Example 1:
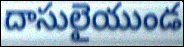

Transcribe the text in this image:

దాసులైయుండ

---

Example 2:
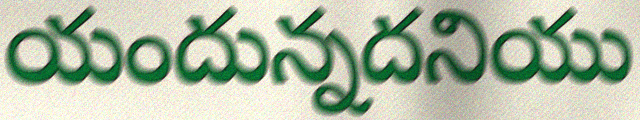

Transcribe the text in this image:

యందున్నదనియు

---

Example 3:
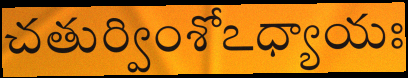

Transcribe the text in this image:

చతుర్వింశోఽధ్యాయః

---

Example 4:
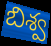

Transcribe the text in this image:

బిశ్వ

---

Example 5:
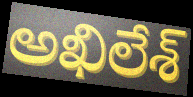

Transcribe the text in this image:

అఖిలేశ్